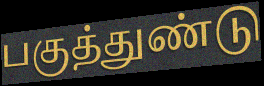
பகுத்துண்டு